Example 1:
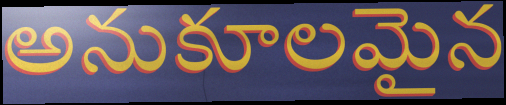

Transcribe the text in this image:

అనుకూలమైన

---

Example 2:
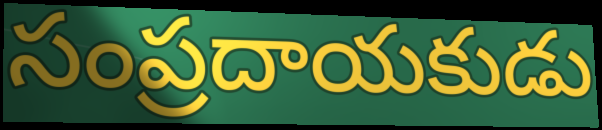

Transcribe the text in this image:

సంప్రదాయకుడు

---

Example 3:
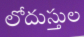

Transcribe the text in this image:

లోదుస్తుల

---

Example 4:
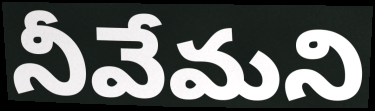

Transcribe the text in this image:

నీవేమని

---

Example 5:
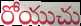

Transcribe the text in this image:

రోయుచు